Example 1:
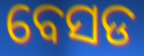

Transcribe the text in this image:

ବେସଡ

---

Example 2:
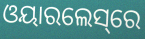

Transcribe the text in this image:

ଓୟାରଲେସ୍‌ରେ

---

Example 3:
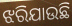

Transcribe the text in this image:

ଝରିଯାଉଛି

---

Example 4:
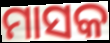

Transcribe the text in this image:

ମାସକ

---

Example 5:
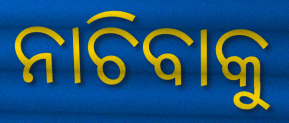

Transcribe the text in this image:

ନାଚିବାକୁ